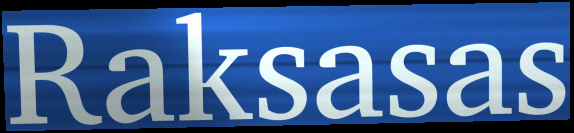
Raksasas